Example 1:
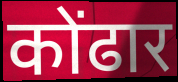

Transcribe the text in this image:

कोंढार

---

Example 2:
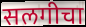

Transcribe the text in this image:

सलगीचा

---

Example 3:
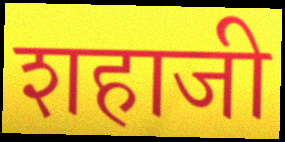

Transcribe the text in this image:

शहाजी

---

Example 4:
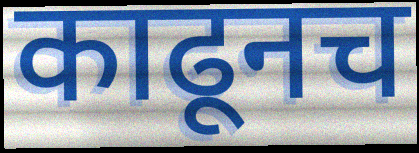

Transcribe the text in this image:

काढूनच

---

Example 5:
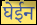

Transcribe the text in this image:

घेईन